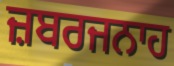
ਜ਼ਬਰਜਨਾਹ